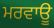
ਮਰਵਾਊ